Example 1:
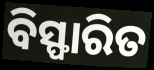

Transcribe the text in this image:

ବିସ୍ଫାରିତ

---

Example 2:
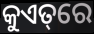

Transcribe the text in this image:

କୁଏତ୍‌ରେ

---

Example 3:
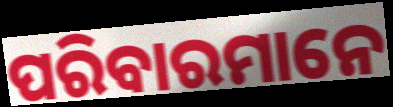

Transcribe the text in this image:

ପରିବାରମାନେ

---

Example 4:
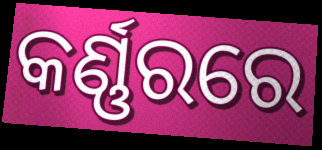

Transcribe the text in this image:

କର୍ଣ୍ଣରରେ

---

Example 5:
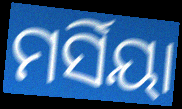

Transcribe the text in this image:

ମର୍ସିୟା